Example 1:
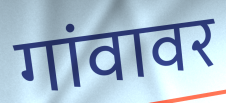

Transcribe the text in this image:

गांवावर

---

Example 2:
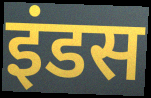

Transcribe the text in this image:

इंडस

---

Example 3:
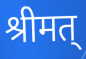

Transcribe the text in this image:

श्रीमत्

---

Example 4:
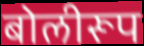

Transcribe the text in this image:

बोलीरूप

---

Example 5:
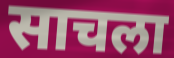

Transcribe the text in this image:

साचला